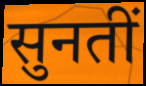
सुनतीं